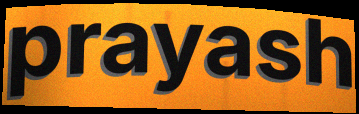
prayash